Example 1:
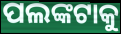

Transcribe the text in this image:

ପଲଙ୍କଟାକୁ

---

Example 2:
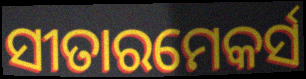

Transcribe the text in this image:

ସୀତାରମେକର୍ସ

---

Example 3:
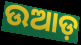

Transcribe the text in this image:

ଉଆଡ଼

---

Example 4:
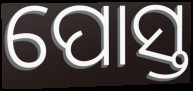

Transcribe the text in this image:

ପୋସ୍ତ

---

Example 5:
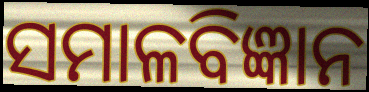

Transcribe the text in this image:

ସମାଳବିଜ୍ଞାନ